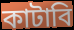
কাটাবি